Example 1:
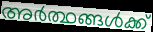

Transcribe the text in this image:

അർത്ഥങ്ങൾക്ക്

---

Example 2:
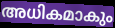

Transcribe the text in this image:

അധികമാകും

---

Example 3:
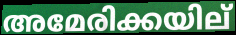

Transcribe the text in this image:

അമേരിക്കയില്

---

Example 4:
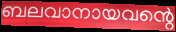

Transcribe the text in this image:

ബലവാനായവന്റെ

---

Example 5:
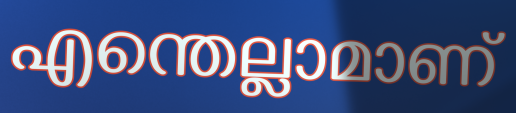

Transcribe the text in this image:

എന്തെല്ലാമാണ്